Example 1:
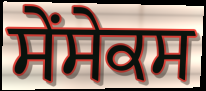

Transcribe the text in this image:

ਸੇਂਸੇਕਸ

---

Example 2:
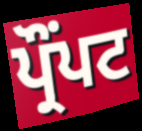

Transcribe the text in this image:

ਪ੍ਰੌੰਪਟ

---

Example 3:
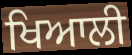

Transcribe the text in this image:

ਖਿਆਲੀ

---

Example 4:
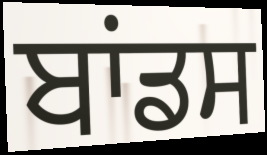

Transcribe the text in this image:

ਬਾਂਡਸ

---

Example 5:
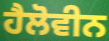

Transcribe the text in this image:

ਹੈਲੋਵੀਨ